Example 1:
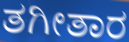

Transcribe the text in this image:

ತಗೀತಾರ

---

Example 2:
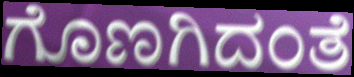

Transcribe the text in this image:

ಗೊಣಗಿದಂತೆ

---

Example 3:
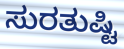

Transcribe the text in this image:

ಸುರತುಷ್ಟಿ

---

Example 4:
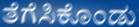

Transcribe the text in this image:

ತೆಗೆಸಿಕೊಂಡು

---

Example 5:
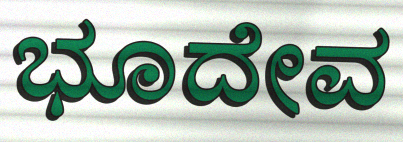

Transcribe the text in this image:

ಭೂದೇವ